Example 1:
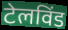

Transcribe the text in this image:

टेलविंड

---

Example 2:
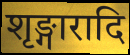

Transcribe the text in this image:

शृङ्गारादि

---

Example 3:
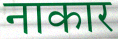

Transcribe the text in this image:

नाकार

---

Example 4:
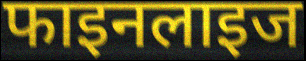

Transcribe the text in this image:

फाइनलाइज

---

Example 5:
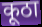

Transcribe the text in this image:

कूठा